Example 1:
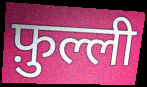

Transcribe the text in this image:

फ़ुल्ली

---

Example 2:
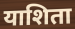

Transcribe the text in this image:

याशिता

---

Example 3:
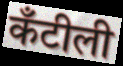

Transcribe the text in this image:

कँटीली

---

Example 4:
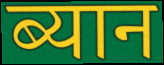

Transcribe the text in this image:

ब्यान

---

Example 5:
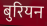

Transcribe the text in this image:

बुरियन